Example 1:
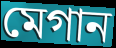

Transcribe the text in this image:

মেগান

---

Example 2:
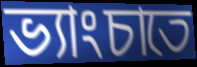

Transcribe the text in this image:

ভ্যাংচাতে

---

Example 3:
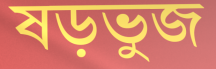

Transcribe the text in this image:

ষড়ভুজ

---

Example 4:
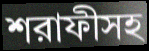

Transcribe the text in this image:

শরাফীসহ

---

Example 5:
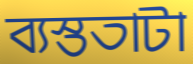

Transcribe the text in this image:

ব্যস্ততাটা